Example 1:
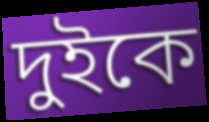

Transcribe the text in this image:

দুইকে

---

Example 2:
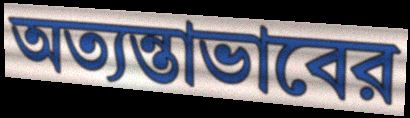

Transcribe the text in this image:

অত্যন্তাভাবের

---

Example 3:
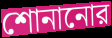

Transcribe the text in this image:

শোনানোর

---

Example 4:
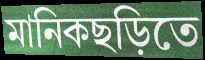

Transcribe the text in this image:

মানিকছড়িতে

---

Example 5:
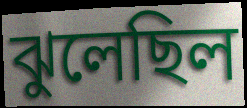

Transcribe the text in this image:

ঝুলেছিল